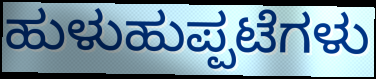
ಹುಳುಹುಪ್ಪಟೆಗಳು